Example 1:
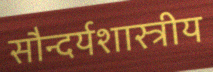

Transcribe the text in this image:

सौन्दर्यशास्त्रीय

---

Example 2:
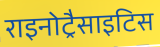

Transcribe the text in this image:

राइनोट्रैसाइटिस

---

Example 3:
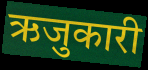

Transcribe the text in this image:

ऋजुकारी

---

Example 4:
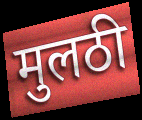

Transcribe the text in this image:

मुलठी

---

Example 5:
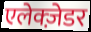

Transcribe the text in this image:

एलेक्ज़ेडर